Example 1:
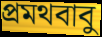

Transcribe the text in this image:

প্রমথবাবু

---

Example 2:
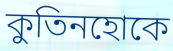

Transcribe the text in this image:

কুতিনহোকে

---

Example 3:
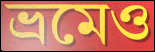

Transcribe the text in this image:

ভ্রমেও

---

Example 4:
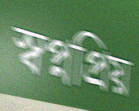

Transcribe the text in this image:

স্বপ্নপ্রিয়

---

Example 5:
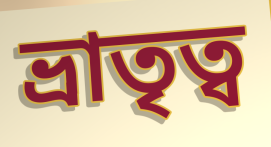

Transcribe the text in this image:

ভ্রাতৃত্ব